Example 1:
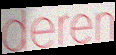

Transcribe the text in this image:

deren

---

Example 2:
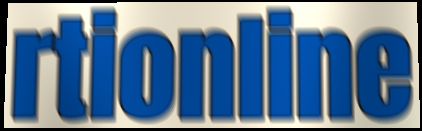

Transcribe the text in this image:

rtionline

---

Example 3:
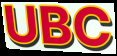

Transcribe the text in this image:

UBC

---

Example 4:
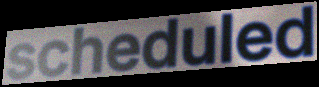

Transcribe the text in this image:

scheduled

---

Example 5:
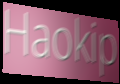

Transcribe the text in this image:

Haokip